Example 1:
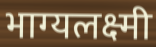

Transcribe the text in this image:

भाग्यलक्ष्मी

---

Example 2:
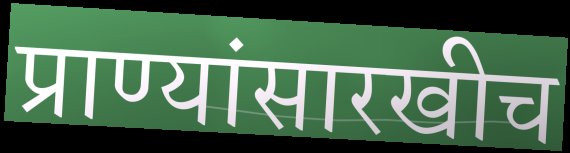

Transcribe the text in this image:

प्राण्यांसारखीच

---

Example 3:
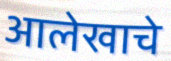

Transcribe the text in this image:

आलेखाचे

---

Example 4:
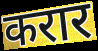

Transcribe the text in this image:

करार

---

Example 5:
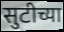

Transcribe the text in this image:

सुटीच्या